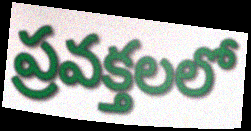
ప్రవక్తలలో